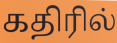
கதிரில்